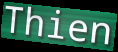
Thien